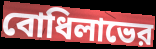
বোধিলাভের